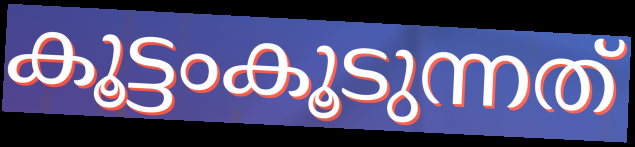
കൂട്ടംകൂടുന്നത്